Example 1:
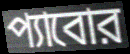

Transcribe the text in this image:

প্যাবোর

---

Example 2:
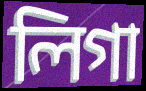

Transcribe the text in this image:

লিগা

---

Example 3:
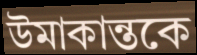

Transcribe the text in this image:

উমাকান্তকে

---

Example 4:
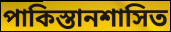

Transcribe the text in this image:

পাকিস্তানশাসিত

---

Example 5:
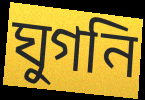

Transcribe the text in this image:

ঘুগনি